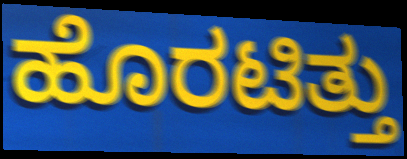
ಹೊರಟಿತ್ತು